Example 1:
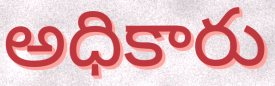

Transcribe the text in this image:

అధికారు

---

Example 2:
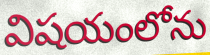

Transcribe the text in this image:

విషయంలోను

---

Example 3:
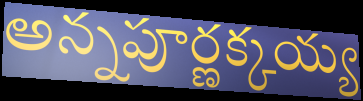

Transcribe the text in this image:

అన్నపూర్ణక్కయ్య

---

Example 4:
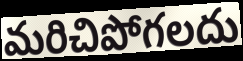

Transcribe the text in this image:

మరిచిపోగలదు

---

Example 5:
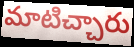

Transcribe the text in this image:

మాటిచ్చారు